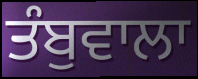
ਤੰਬੁਵਾਲਾ